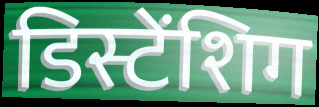
डिस्टेंशिग